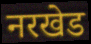
नरखेड